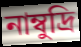
নাম্বুদ্রি